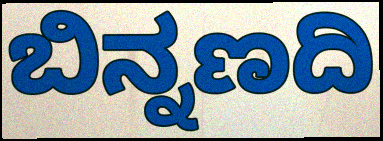
ಬಿನ್ನಣದಿ